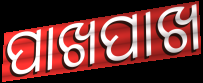
ପାଖପାଖ